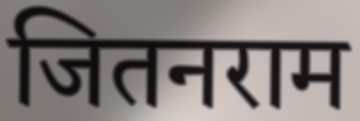
जितनराम